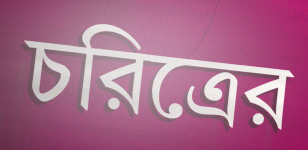
চরিত্রের